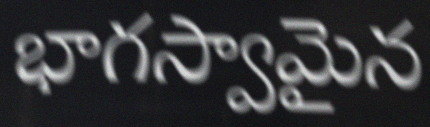
భాగస్వామైన